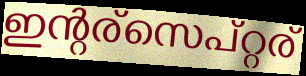
ഇന്റര്സെപ്റ്റര്